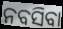
ନବସିବା